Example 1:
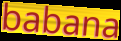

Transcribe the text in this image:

babana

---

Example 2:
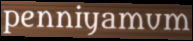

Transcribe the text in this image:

penniyamum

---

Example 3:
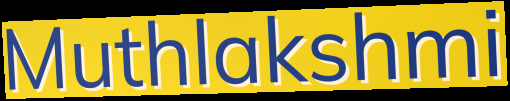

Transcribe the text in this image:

Muthlakshmi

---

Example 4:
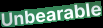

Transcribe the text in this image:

Unbearable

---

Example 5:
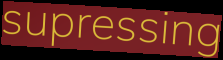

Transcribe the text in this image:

supressing